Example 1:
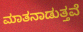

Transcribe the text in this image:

ಮಾತನಾಡುತ್ತವೆ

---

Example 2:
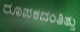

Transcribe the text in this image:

ರೂಪಕದಂತಿತ್ತು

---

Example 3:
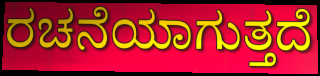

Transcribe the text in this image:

ರಚನೆಯಾಗುತ್ತದೆ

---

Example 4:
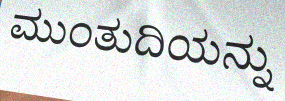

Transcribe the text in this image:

ಮುಂತುದಿಯನ್ನು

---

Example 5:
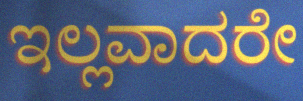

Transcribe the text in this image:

ಇಲ್ಲವಾದರೇ